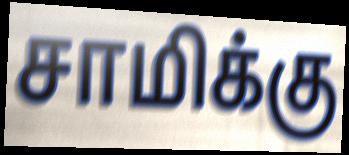
சாமிக்கு